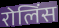
रोलिंस